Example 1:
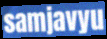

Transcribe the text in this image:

samjavyu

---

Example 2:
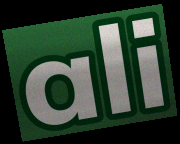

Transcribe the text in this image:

ali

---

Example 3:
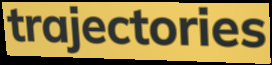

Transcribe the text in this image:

trajectories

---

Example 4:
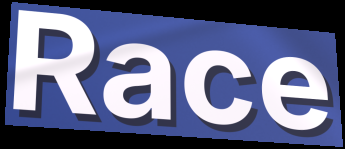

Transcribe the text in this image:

Race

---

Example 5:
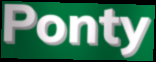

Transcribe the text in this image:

Ponty